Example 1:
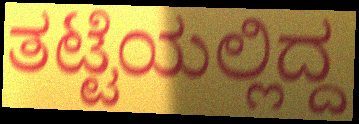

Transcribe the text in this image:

ತಟ್ಟೆಯಲ್ಲಿದ್ದ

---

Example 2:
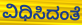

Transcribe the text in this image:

ವಿಧಿಸಿದಂತೆ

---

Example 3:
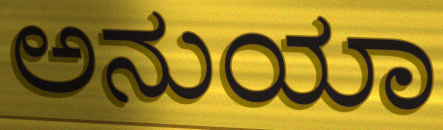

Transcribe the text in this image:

ಅನುಯಾ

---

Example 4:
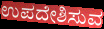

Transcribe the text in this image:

ಉಪದೇಶಿಸುವ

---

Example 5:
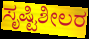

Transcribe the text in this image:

ಸೃಷ್ಟಿಶೀಲರ